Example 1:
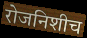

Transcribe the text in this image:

रोजनिशीच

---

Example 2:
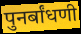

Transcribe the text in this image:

पुनर्बांधणी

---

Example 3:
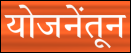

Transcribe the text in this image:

योजनेंतून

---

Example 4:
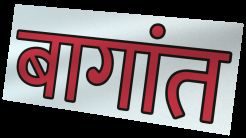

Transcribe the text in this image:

बागांत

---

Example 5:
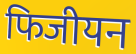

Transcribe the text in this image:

फिजीयन